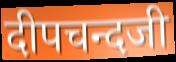
दीपचन्दजी